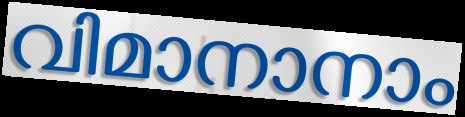
വിമാനാനാം